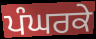
ਪੰਘਰਕੇ